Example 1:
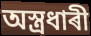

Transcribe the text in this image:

অস্ত্ৰধাৰী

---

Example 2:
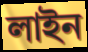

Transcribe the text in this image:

লাইন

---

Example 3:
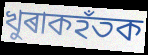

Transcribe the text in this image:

খুৰাকহঁতক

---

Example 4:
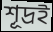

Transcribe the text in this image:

শূদ্ৰই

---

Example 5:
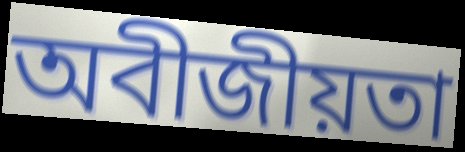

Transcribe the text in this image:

অবীজীয়তা